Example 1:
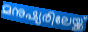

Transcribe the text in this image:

മനുഷ്യരിലേയ്ക്ക്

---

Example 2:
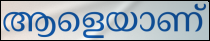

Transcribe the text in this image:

ആളെയാണ്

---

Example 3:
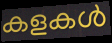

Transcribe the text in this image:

കളകൾ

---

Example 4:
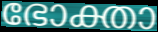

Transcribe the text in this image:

ഭോക്താ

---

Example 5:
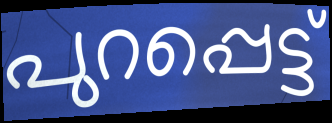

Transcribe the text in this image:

പുറപ്പെട്ട്